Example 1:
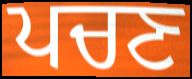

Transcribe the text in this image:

ਪਚਣ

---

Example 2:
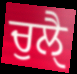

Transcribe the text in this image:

ਚੁਲੈੑ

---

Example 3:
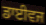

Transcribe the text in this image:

ਡਾਈਵਜ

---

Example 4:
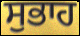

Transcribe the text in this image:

ਸੁਭਾਹ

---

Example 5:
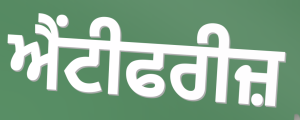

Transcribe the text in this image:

ਐਂਟੀਫਰੀਜ਼